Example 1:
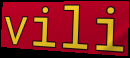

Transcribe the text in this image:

vili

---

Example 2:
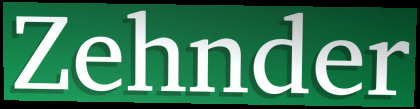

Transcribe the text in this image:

Zehnder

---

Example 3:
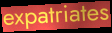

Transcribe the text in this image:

expatriates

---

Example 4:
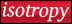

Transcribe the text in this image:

isotropy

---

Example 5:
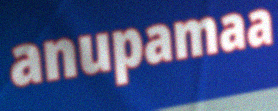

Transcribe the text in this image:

anupamaa